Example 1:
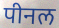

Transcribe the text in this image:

पीनल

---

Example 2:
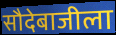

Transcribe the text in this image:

सौदेबाजीला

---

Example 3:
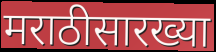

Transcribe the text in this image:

मराठीसारख्या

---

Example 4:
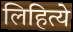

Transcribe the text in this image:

लिहित्ये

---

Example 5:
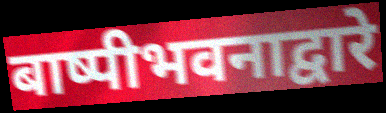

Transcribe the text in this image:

बाष्पीभवनाद्वारे